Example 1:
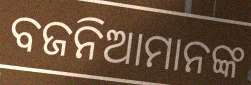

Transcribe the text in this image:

ବଜନିଆମାନଙ୍କ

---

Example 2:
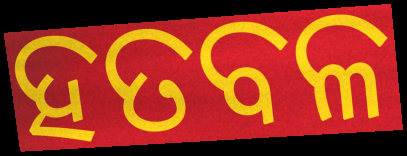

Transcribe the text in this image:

ହତବଳ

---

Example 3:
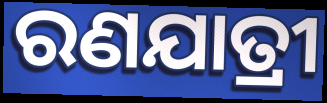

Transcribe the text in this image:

ରଣଯାତ୍ରୀ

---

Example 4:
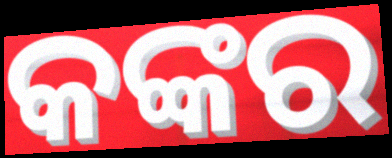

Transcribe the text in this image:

କଙ୍କର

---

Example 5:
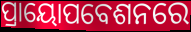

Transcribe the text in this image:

ପ୍ରାୟୋପବେଶନରେ